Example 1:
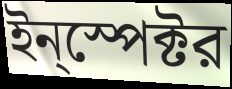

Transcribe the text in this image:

ইন্‌স্পেক্টর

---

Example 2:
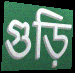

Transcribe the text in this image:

গুড়ি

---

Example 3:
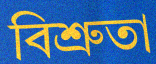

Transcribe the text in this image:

বিশ্রুতা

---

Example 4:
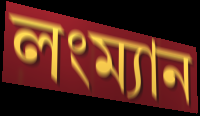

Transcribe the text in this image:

লংম্যান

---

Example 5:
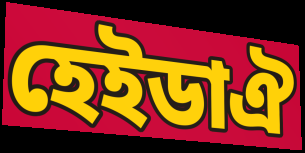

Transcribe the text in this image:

হেইডাঐ